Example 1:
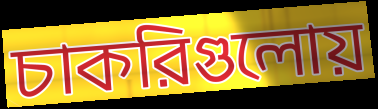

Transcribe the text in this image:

চাকরিগুলোয়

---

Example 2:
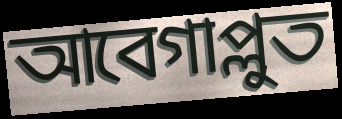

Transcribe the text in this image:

আবেগাপ্লুত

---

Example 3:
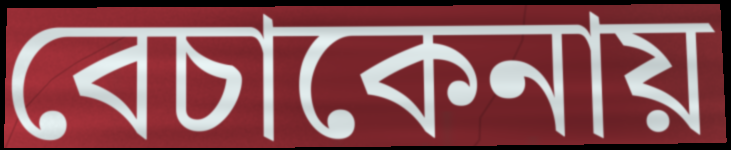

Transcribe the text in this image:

বেচাকেনায়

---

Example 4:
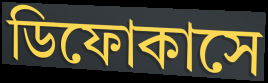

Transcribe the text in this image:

ডিফোকাসে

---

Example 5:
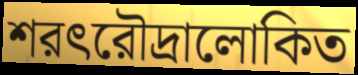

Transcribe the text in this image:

শরৎরৌদ্রালোকিত